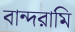
বান্দরামি